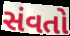
સંવતો